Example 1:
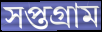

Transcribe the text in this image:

সপ্তগ্রাম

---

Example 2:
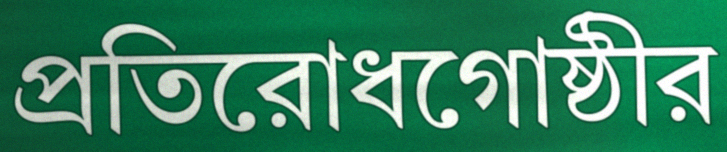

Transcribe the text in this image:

প্রতিরোধগোষ্ঠীর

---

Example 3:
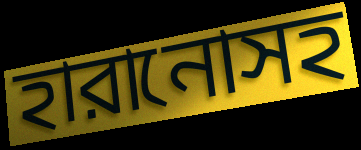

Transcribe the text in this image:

হারানোসহ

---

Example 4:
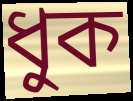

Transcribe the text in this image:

ধুক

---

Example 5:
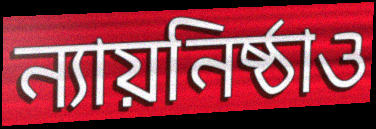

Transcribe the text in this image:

ন্যায়নিষ্ঠাও